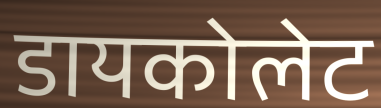
डायकोलेट